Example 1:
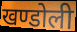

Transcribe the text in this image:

खण्डोली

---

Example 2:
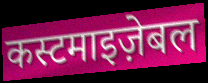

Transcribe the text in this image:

कस्टमाइज़ेबल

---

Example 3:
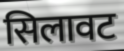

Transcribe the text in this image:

सिलावट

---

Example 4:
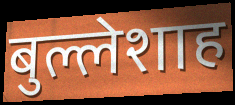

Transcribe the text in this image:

बुल्लेशाह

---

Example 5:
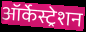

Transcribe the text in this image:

ऑर्केस्ट्रेशन